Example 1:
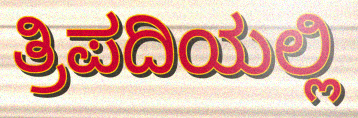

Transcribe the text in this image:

ತ್ರಿಪದಿಯಲ್ಲಿ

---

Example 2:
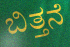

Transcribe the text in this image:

ಬಿತ್ತನೆ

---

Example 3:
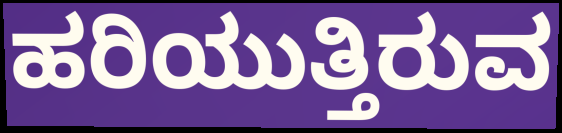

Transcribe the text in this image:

ಹರಿಯುತ್ತಿರುವ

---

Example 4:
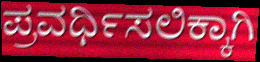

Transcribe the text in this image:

ಪ್ರವರ್ಧಿಸಲಿಕ್ಕಾಗಿ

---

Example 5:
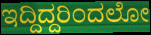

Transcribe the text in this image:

ಇದ್ದಿದ್ದರಿಂದಲೋ